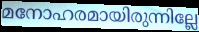
മനോഹരമായിരുന്നില്ലേ